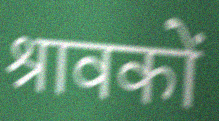
श्रावकों